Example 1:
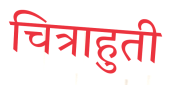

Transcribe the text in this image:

चित्राहुती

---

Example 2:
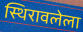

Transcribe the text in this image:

स्थिरावलेला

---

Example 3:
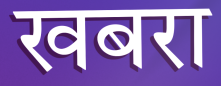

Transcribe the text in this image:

खबरा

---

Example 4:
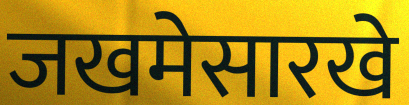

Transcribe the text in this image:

जखमेसारखे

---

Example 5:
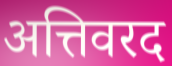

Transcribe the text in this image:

अत्तिवरद